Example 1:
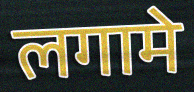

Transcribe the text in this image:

लगामे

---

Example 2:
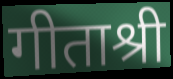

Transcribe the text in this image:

गीताश्री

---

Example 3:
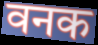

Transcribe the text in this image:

वनक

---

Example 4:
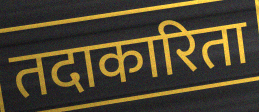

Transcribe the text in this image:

तदाकारिता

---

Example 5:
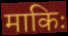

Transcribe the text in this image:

माकिः